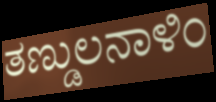
ತಣ್ಡುಲನಾಳಿಂ